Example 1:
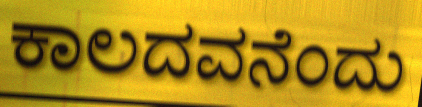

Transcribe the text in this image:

ಕಾಲದವನೆಂದು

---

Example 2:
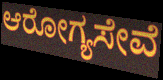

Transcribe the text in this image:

ಆರೋಗ್ಯಸೇವೆ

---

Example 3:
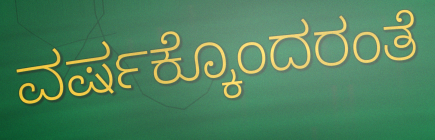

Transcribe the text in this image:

ವರ್ಷಕ್ಕೊಂದರಂತೆ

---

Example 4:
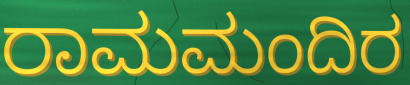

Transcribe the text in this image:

ರಾಮಮಂದಿರ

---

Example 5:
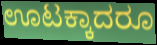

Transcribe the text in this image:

ಊಟಕ್ಕಾದರೂ